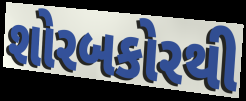
શોરબકોરથી